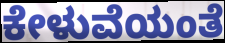
ಕೇಳುವೆಯಂತೆ